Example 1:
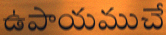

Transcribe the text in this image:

ఉపాయముచే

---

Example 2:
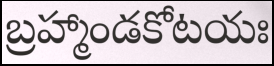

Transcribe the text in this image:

బ్రహ్మాండకోటయః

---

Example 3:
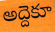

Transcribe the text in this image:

అద్దెకూ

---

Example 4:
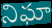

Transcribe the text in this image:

నిఘా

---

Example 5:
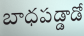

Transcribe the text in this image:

బాధపడ్డాడో